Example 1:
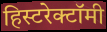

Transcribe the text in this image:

हिस्टरेक्टॉमी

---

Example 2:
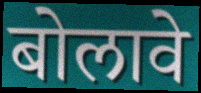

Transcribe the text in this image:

बोलावे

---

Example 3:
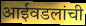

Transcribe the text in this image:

आईवडलांची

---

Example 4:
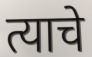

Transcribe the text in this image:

त्याचे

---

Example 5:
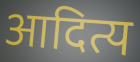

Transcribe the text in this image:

आदित्य